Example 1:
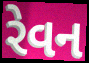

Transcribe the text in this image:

રેવન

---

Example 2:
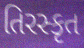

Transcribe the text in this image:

તિરસ્કૃત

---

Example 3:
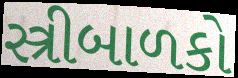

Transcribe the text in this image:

સ્ત્રીબાળકો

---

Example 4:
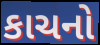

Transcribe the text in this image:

કાચનો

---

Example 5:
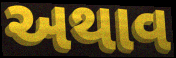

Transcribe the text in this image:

અથાવ